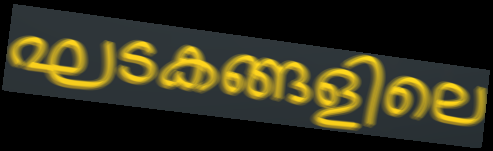
ഘടകങ്ങളിലെ